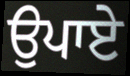
ਉਪਾਏ